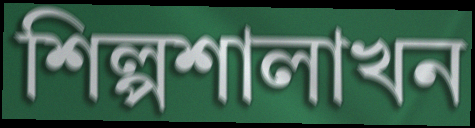
শিল্পশালাখন